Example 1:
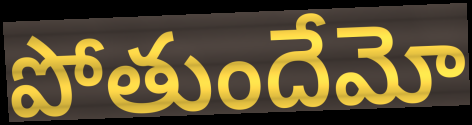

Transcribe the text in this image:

పోతుందేమో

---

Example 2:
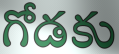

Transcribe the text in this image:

గోడకు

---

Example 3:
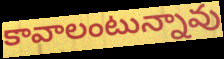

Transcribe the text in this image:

కావాలంటున్నావు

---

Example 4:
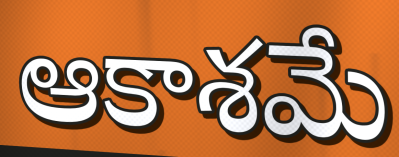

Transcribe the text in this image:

ఆకాశమే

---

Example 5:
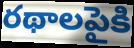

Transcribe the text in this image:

రథాలపైకి